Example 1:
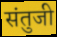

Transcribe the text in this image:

संतुजी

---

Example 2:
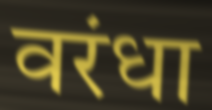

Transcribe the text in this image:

वरंधा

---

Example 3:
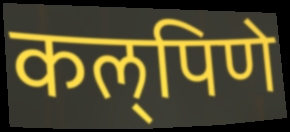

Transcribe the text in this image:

कल्पिणे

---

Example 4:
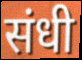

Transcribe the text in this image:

संधी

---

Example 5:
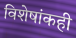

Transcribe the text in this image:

विशेषांकही